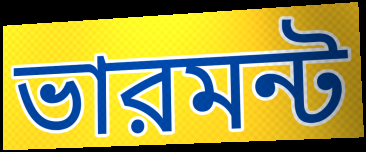
ভারমন্ট